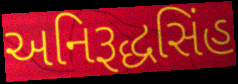
અનિરૂદ્ધસિંહ